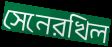
সেনেরখিল